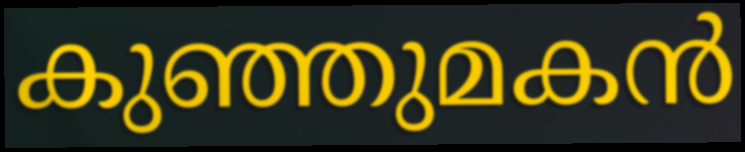
കുഞ്ഞുമകൻ